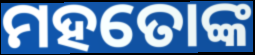
ମହତୋଙ୍କ